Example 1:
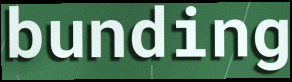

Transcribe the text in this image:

bunding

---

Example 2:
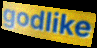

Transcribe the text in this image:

godlike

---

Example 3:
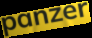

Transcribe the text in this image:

panzer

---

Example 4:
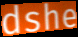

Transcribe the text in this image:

dshe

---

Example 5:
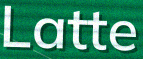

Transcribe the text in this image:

Latte